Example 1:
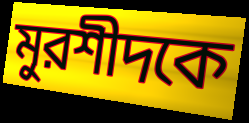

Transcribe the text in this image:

মুরশীদকে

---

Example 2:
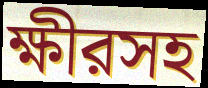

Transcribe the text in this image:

ক্ষীরসহ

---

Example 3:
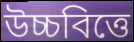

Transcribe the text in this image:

উচ্চবিত্তে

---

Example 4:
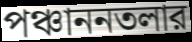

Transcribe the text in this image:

পঞ্চাননতলার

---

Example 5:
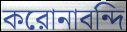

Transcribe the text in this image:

করোনাবন্দি